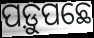
ପଡ଼ୁପଛେ